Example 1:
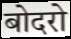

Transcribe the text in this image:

बोदरो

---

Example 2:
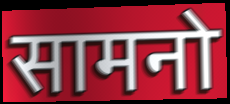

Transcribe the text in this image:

सामनो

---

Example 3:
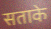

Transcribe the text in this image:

सताके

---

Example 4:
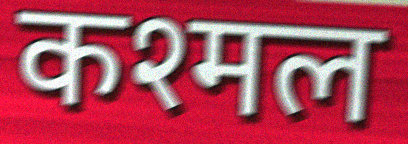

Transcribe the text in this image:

कश्मल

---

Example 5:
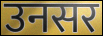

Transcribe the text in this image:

उनसर